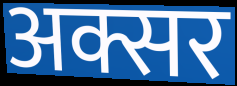
अक्सर